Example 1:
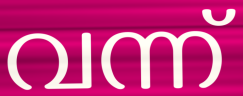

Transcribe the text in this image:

വന്ന്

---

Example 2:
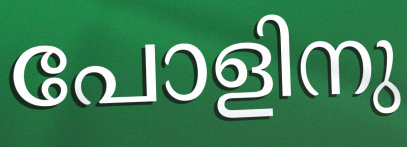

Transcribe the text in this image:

പോളിനു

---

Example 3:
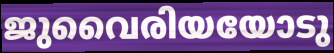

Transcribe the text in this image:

ജുവൈരിയയോടു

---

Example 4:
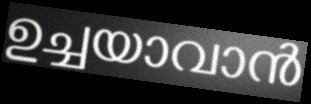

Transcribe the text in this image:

ഉച്ചയാവാൻ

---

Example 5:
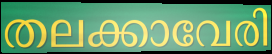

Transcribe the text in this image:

തലക്കാവേരി